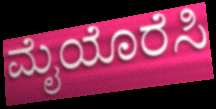
ಮೈಯೊರೆಸಿ